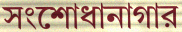
সংশোধানাগার